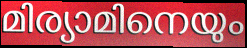
മിര്യാമിനെയും